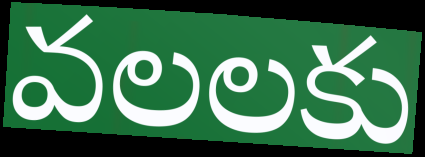
వలలకు